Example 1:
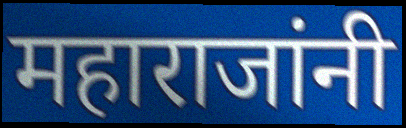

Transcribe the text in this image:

महाराजांनी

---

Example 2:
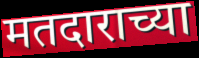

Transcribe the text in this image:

मतदाराच्या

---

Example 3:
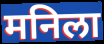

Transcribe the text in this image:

मनिला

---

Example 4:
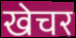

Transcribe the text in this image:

खेचर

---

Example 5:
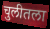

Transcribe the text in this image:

चुलीतला